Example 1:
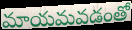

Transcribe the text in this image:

మాయమవడంతో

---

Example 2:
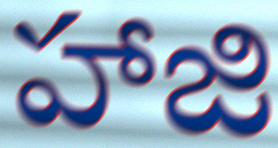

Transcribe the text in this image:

హాజి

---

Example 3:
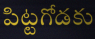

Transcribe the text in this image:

పిట్టగోడకు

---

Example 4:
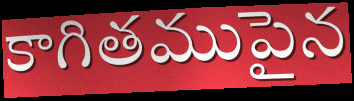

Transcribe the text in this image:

కాగితముపైన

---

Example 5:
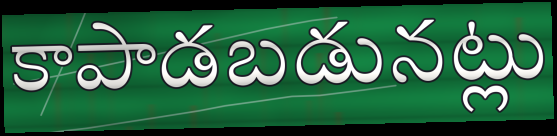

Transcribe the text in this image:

కాపాడబడునట్లు